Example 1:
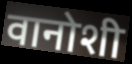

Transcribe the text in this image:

वानोशी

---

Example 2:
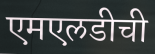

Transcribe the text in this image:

एमएलडीची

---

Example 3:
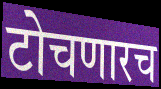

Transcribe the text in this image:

टोचणारच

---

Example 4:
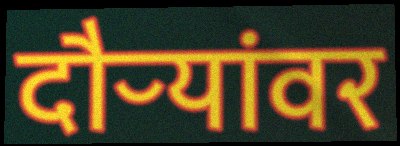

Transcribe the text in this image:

दौऱ्यांवर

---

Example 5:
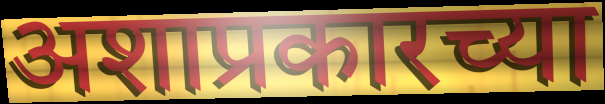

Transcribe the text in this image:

अशाप्रकारच्या